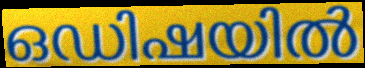
ഒഡിഷയിൽ